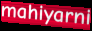
mahiyarni